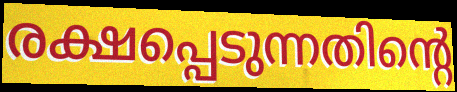
രക്ഷപ്പെടുന്നതിന്റെ